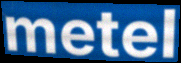
metel